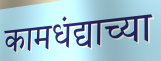
कामधंद्याच्या